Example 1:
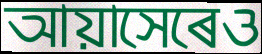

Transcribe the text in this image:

আয়াসেৰেও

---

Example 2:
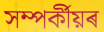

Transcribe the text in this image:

সম্পৰ্কীয়ৰ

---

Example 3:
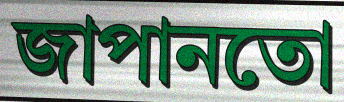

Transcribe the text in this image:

জাপানতো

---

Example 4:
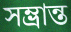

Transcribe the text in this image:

সম্ভ্ৰান্ত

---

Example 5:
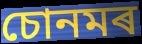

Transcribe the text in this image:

চোনমৰ